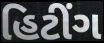
હિટીંગ